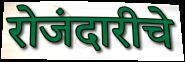
रोजंदारीचे